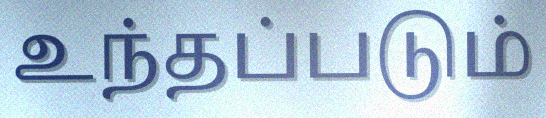
உந்தப்படும்